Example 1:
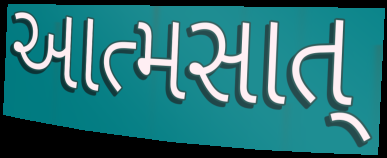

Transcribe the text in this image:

આત્મસાત્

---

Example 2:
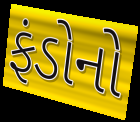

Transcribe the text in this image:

ફંડોનો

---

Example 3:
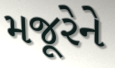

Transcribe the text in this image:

મજૂરેને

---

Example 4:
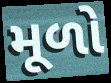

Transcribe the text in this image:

મૂળો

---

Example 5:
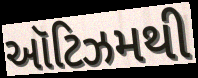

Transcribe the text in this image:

ઑટિઝમથી